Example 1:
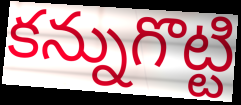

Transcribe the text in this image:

కన్నుగొట్టి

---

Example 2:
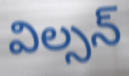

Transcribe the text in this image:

విల్సన్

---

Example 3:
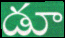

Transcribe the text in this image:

డూ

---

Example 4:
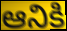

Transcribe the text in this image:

ఆనికి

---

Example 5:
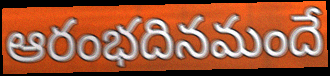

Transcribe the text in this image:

ఆరంభదినమందే